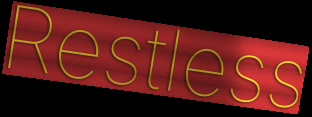
Restless